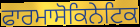
ਫਾਰਮਾਸੋਕਿਨੇਟਿਕ